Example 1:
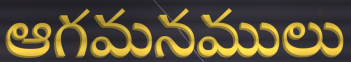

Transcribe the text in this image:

ఆగమనములు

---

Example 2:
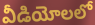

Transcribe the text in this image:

వీడియోలలో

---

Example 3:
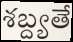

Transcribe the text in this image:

శబ్ద్యతే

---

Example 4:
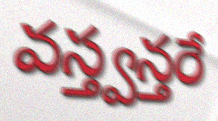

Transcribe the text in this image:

వస్త్వన్తరే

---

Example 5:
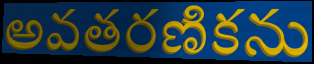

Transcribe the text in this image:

అవతరణికను